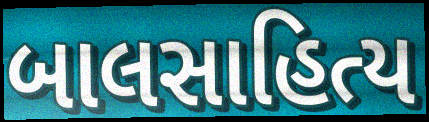
બાલસાહિત્ય